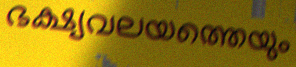
ഭക്ഷ്യവലയത്തെയും